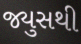
જ્યુસથી